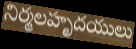
నిర్మలహృదయులు